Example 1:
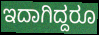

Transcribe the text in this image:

ಇದಾಗಿದ್ದರೂ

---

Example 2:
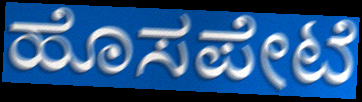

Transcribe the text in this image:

ಹೊಸಪೇಟೆ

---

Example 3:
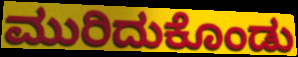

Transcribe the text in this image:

ಮುರಿದುಕೊಂಡು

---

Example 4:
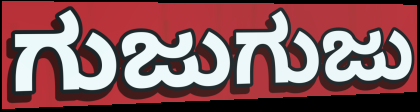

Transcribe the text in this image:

ಗುಜುಗುಜು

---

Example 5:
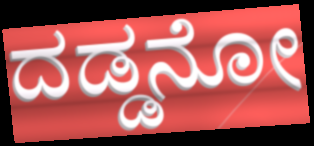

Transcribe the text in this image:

ದಡ್ಡನೋ